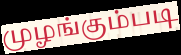
முழங்கும்படி